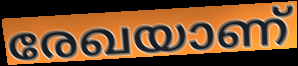
രേഖയാണ്